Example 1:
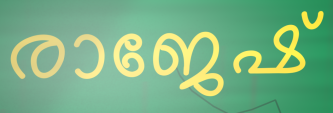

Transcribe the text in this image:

രാജേഷ്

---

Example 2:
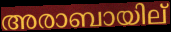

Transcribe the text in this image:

അരാബായില്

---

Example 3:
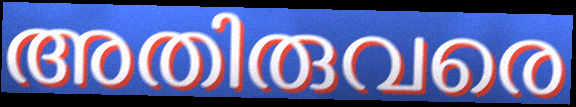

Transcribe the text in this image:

അതിരുവരെ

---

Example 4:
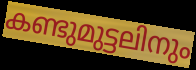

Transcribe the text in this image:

കണ്ടുമുട്ടലിനും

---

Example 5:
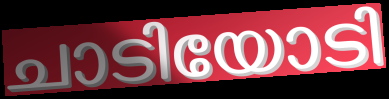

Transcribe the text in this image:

ചാടിയോടി